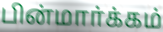
பின்மார்க்கம்